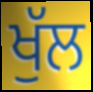
ਖੁੱਲ